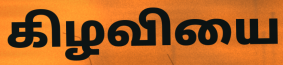
கிழவியை